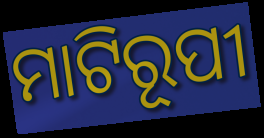
ମାଟିରୂପୀ